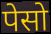
पेसो